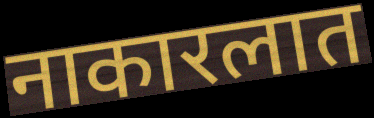
नाकारलात